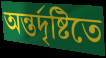
অন্তর্দৃষ্টিতে